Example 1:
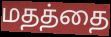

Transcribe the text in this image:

மதத்தை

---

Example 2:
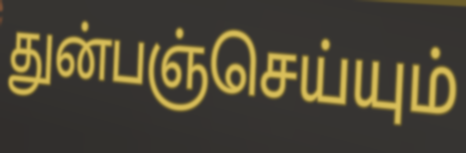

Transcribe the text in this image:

துன்பஞ்செய்யும்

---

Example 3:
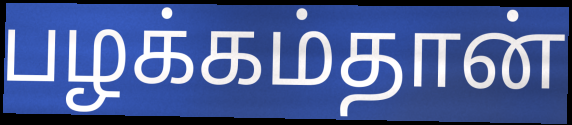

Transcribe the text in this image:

பழக்கம்தான்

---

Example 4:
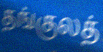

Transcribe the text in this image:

தங்குலத்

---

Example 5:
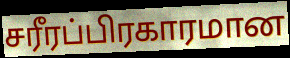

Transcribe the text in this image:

சரீரப்பிரகாரமான